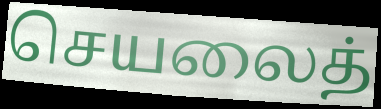
செயலைத்